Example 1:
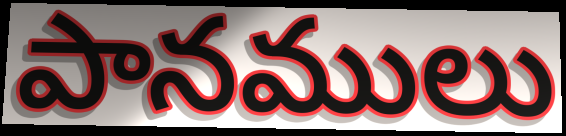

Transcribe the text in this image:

పానములు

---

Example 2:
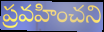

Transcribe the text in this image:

ప్రవహించని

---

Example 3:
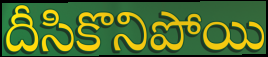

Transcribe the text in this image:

దీసికొనిపోయి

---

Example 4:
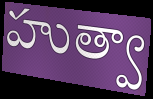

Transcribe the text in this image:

హుత్వా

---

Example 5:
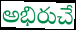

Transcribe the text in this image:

అభిరుచే